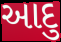
આદુ